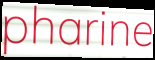
pharine